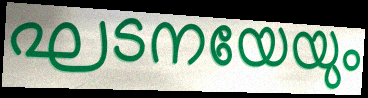
ഘടനയേയും